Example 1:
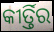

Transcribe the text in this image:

କୀର୍ତ୍ତିର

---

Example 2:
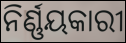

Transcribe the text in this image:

ନିର୍ଣ୍ଣୟକାରୀ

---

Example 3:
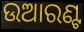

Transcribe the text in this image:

ଉଆରଣ୍ଟ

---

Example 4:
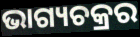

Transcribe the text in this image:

ଭାଗ୍ୟଚକ୍ରର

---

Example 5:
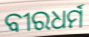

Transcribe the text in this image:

ବୀରଧର୍ମ